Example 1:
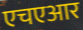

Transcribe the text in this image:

एचएआर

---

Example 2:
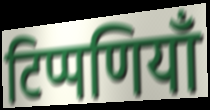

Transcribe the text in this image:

टिप्पणियाँ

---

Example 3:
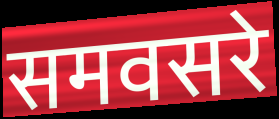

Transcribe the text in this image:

समवसरे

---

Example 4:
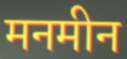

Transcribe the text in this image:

मनमीन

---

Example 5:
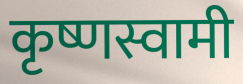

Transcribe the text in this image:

कृष्णस्वामी